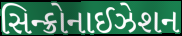
સિન્ક્રોનાઈઝેશન